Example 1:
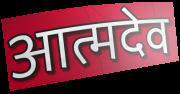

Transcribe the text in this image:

आत्मदेव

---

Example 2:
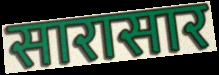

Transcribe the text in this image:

सारासार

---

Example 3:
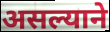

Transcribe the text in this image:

असल्याने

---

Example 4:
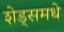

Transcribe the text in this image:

शेड्समधे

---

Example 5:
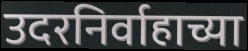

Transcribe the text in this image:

उदरनिर्वाहाच्या